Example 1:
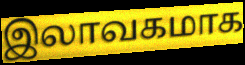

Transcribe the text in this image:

இலாவகமாக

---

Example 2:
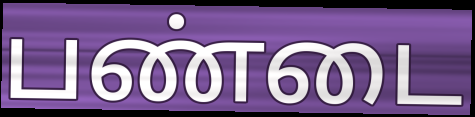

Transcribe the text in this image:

பண்டை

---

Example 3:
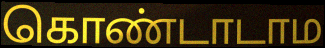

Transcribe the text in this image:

கொண்டாடாம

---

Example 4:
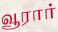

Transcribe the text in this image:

வூரார்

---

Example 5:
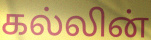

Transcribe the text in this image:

கல்லின்